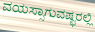
ವಯಸ್ಸಾಗುವಷ್ಟರಲ್ಲಿ